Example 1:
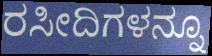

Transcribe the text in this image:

ರಸೀದಿಗಳನ್ನೂ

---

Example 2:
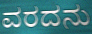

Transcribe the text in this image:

ವರದನು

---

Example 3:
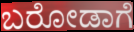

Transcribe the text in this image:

ಬರೋಡಾಗೆ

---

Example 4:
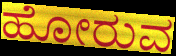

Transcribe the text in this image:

ಹೋರುವ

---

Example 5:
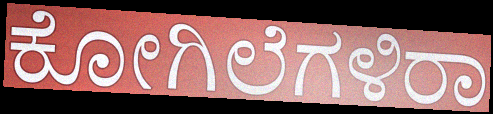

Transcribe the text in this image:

ಕೋಗಿಲೆಗಳಿರಾ